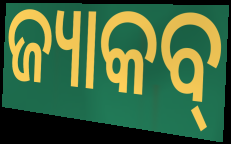
ଜ୍ୟାକବ୍